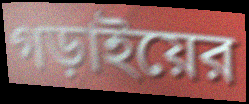
গড়াইয়ের